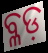
ବ୍ଳଡ଼